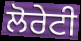
ਲੋਰੇਟੀ